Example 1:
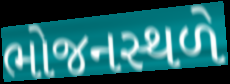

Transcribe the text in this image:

ભોજનસ્થળે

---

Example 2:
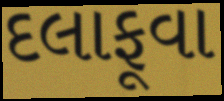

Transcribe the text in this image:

દલાફૂવા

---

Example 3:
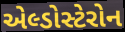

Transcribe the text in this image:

એલ્ડોસ્ટેરોન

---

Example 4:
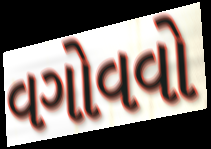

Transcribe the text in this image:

વગોવવો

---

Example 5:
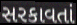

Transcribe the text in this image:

સરકાવતાં